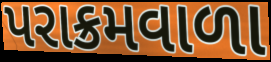
પરાક્રમવાળા